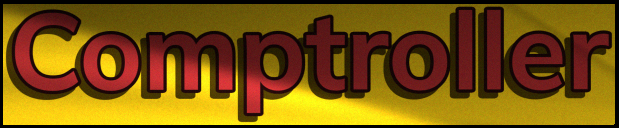
Comptroller